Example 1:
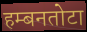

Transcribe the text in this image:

हम्बनतोटा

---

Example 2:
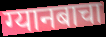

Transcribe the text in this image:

ग्यानबाचा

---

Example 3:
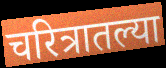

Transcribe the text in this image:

चरित्रातल्या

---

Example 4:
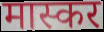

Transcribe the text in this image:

मास्कर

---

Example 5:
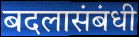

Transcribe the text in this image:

बदलासंबंधी